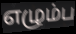
எழும்ப